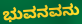
ಭುವನವನು